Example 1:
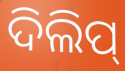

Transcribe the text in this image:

ଦିଲିପ୍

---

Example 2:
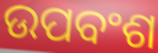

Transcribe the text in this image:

ଉପବଂଶ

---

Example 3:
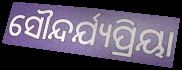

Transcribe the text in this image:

ସୌନ୍ଦର୍ଯ୍ୟପ୍ରିୟା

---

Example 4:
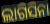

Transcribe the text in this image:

ଲାଗିସିନା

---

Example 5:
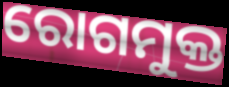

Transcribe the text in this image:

ରୋଗମୁକ୍ତ